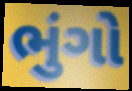
ભુંગો